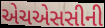
એચએસસીની